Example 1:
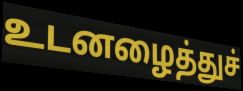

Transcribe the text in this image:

உடனழைத்துச்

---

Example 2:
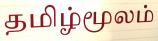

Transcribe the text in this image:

தமிழ்மூலம்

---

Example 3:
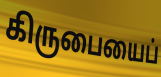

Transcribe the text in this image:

கிருபையைப்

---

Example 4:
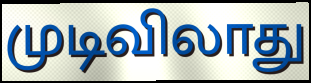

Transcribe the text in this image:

முடிவிலாது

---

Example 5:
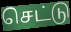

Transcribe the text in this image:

செட்டு